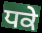
ਧਕੇ